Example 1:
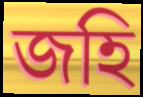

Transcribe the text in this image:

জহি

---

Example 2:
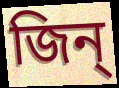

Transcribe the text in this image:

জিন্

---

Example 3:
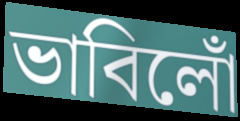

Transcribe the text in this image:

ভাবিলোঁ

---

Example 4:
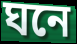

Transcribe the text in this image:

ঘনে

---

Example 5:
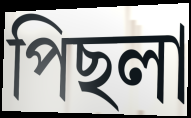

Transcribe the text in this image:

পিছলা